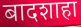
बादशाहा